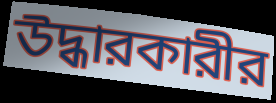
উদ্ধারকারীর